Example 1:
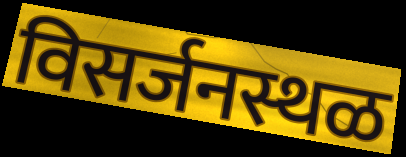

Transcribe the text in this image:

विसर्जनस्थळ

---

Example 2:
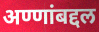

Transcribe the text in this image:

अण्णांबद्दल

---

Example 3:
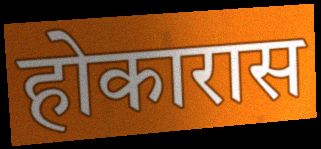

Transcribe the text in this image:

होकारास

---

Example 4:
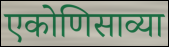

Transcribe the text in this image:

एकोणिसाव्या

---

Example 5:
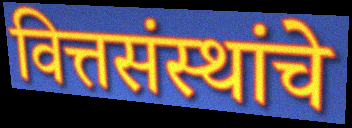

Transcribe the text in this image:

वित्तसंस्थांचे